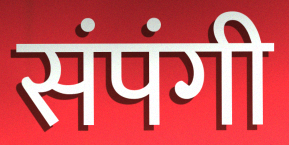
संपंगी